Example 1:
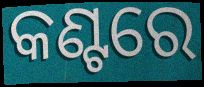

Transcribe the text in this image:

କଣ୍ଟରେ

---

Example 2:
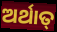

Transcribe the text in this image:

ଅର୍ଥାତ୍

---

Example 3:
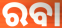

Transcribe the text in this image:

ରବା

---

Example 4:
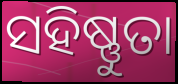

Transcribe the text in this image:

ସହିଷ୍ଣୁତା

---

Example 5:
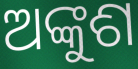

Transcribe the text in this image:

ଅଙ୍କୁଶ